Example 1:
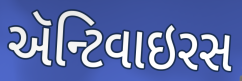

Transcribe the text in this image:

ઍન્ટિવાઇરસ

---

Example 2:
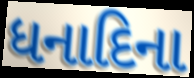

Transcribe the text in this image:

ધનાદિના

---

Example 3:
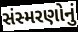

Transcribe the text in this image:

સંસ્મરણોનું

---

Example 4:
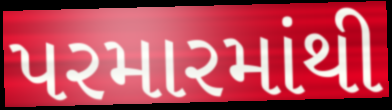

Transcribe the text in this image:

પરમારમાંથી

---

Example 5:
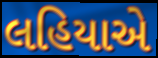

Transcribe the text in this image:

લહિયાએ